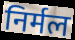
निर्मल